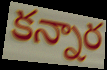
కన్నార